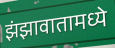
झंझावातामध्ये